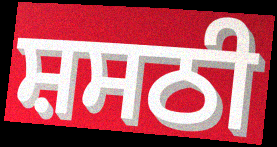
ਸ਼ਸਠੀ